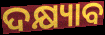
ଦକ୍ଷ୍ୟାବ